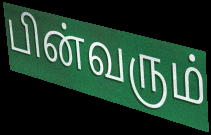
பின்வரும்